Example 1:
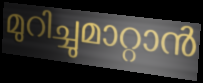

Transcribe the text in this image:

മുറിച്ചുമാറ്റാൻ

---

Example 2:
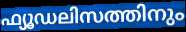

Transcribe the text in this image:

ഫ്യൂഡലിസത്തിനും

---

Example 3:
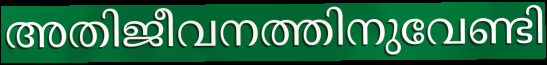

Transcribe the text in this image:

അതിജീവനത്തിനുവേണ്ടി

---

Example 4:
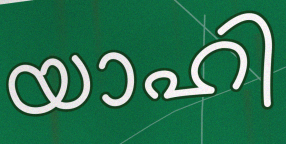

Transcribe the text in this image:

യാഹി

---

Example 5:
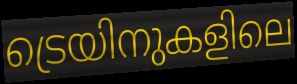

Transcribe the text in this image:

ട്രെയിനുകളിലെ